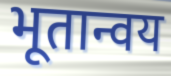
भूतान्वय